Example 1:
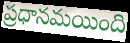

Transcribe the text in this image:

ప్రధానమయింది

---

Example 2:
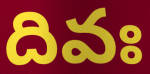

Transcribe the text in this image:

దివః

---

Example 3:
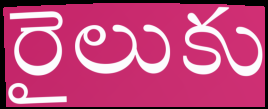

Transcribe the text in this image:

రైలుకు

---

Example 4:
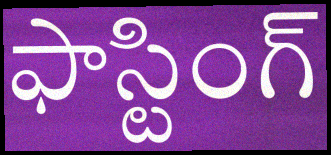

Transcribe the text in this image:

ఫాస్టింగ్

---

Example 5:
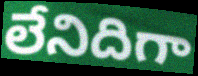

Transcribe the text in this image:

లేనిదిగా